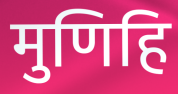
मुणिहि